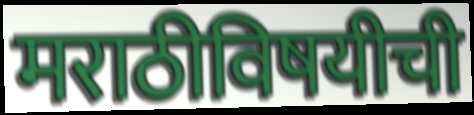
मराठीविषयीची